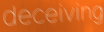
deceiving